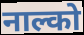
नाल्को